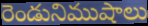
రెండునిముషాలు